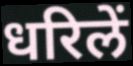
धरिलें